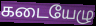
கடையேழு